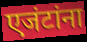
एजंटांना